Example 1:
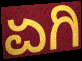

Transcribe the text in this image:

ಏಗಿ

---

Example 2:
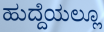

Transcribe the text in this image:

ಹುದ್ದೆಯಲ್ಲೂ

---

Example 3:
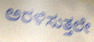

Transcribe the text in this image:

ಅರಳಿಸುತ್ತಲೇ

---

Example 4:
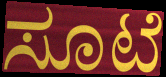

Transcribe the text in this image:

ಸೂಟೆ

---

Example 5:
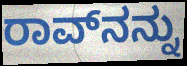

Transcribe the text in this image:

ರಾವ್‌ನನ್ನು